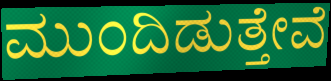
ಮುಂದಿಡುತ್ತೇವೆ